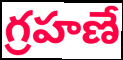
గ్రహణే